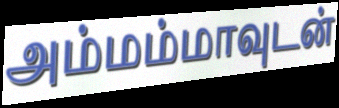
அம்மம்மாவுடன்